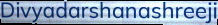
Divyadarshanashreeji